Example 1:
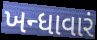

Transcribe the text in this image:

ખન્ધાવારં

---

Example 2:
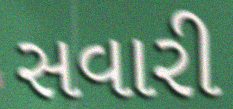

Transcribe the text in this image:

સવારી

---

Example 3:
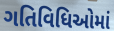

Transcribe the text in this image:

ગતિવિધિઓમાં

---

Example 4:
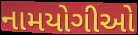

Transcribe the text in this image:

નામયોગીઓ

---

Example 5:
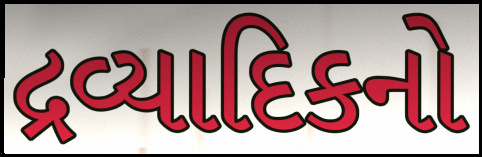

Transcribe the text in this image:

દ્રવ્યાદિકનો